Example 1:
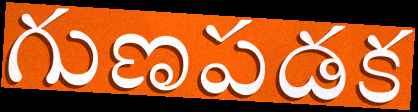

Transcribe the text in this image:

గుణపడక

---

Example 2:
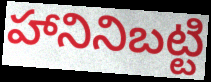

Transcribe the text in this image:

హానినిబట్టి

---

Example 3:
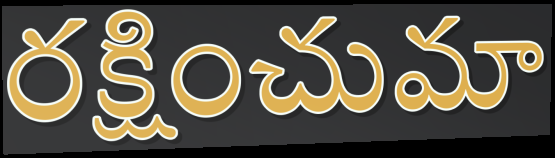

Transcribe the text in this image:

రక్షించుమా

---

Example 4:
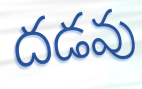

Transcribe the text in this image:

దడవు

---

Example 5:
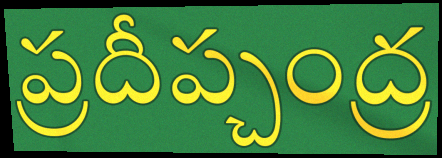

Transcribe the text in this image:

ప్రదీప్చంద్ర